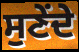
ਸੁਣੇਂਦੇ